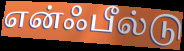
என்ஃபீல்டு